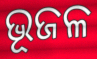
ଭୂଜଳ